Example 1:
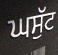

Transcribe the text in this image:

ਘਸੁੱਟ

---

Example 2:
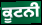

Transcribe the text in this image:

ਕੂਟਨੀ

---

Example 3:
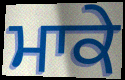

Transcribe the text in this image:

ਮਾਕੇ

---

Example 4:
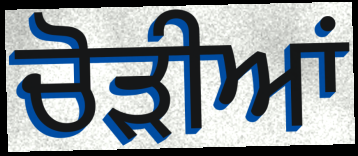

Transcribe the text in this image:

ਚੋੜੀਆਂ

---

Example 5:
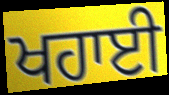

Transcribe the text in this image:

ਖਹਾਈ